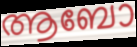
ആബോ